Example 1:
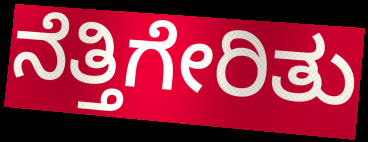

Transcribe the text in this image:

ನೆತ್ತಿಗೇರಿತು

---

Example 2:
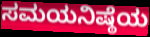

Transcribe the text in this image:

ಸಮಯನಿಷ್ಠೆಯ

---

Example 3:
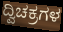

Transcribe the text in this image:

ದ್ವಿಚಕ್ರಗಳ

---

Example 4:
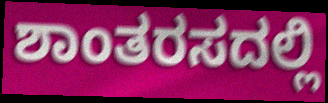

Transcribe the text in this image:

ಶಾಂತರಸದಲ್ಲಿ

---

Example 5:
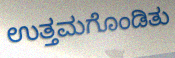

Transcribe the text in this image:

ಉತ್ತಮಗೊಂಡಿತು